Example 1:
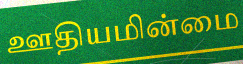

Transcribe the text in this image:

ஊதியமின்மை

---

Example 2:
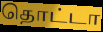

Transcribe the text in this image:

தொட்டா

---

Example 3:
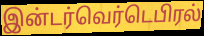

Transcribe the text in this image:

இன்டர்வெர்டெபிரல்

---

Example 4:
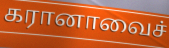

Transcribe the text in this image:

கரானாவைச்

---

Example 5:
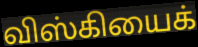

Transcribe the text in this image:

விஸ்கியைக்